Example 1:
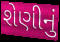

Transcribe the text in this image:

શેણીનું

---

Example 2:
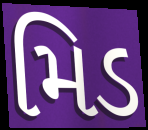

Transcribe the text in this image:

મિડ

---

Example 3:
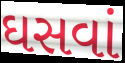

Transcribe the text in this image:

ઘસવાં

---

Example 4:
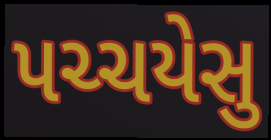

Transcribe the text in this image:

પચ્ચયેસુ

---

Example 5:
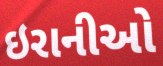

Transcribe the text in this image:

ઇરાનીઓ